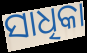
ସାଧିକା